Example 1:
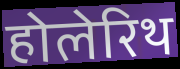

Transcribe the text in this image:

होलेरिथ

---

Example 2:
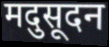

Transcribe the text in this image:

मदुसूदन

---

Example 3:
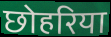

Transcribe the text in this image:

छोहरिया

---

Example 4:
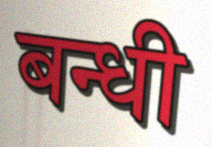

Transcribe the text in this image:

बन्धी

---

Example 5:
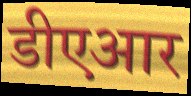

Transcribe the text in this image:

डीएआर